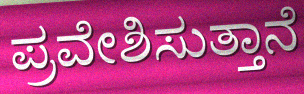
ಪ್ರವೇಶಿಸುತ್ತಾನೆ